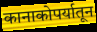
कानाकोपर्यातून